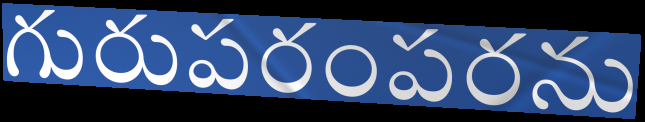
గురుపరంపరను